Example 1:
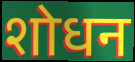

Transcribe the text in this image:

शोधन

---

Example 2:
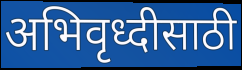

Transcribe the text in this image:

अभिवृध्दीसाठी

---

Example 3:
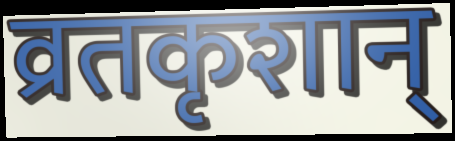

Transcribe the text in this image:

व्रतकृशान्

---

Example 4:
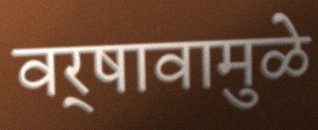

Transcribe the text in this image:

वर्षावामुळे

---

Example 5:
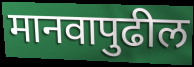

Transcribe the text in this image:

मानवापुढील